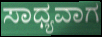
ಸಾಧ್ಯವಾಗ